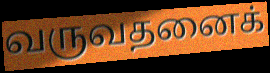
வருவதனைக்